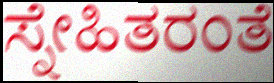
ಸ್ನೇಹಿತರಂತೆ